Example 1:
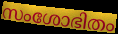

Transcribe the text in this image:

സംശോഭിതം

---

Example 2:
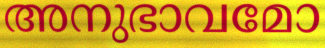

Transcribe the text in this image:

അനുഭാവമോ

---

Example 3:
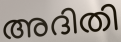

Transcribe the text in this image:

അദിതി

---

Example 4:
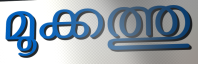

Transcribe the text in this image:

മൂക്കത്തു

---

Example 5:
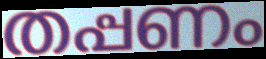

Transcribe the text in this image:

തപ്പണം